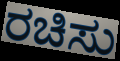
ರಚಿಸು